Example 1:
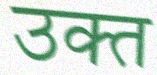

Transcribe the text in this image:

उक्‍त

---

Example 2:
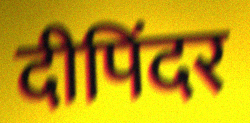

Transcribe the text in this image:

दीपिंदर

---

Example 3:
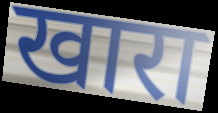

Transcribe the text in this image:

खारा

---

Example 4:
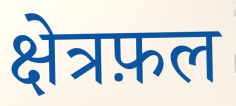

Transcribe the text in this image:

क्षेत्रफ़ल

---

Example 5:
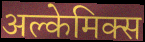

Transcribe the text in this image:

अल्केमिक्स